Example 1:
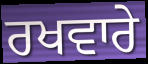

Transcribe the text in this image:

ਰਖਵਾਰੇ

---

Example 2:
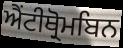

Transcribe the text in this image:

ਐਂਟੀਥ੍ਰੋਮਬਿਨ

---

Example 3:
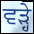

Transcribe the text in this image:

ਵੜ੍ਹੇ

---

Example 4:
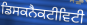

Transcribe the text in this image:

ਡਿਸਕਨੈਕਟੀਵਿਟੀ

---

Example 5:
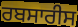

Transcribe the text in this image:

ਰਬਸਾਰੀਸ